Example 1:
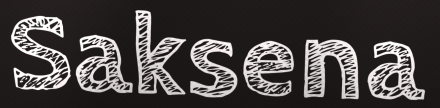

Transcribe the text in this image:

Saksena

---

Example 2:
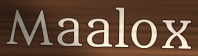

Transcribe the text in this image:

Maalox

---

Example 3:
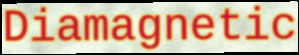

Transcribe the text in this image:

Diamagnetic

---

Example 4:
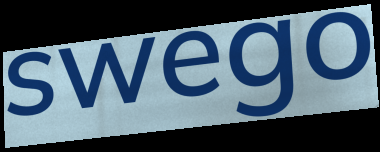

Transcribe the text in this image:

swego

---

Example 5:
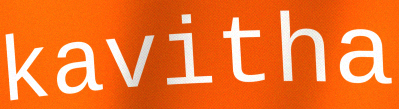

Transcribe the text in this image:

kavitha